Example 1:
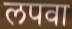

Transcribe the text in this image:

लपवा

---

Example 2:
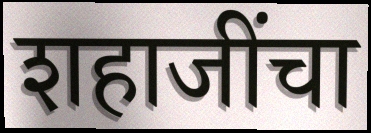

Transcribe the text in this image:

शहाजींचा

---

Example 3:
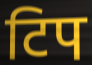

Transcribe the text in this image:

टिप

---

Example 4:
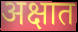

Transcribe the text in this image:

अक्षात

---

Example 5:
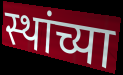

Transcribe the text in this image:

स्थांच्या